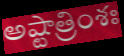
అష్టాత్రింశః